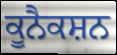
ਕੂਨੈਕਸ਼ਨ